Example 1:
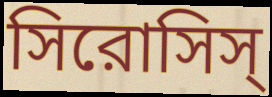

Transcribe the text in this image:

সিরোসিস্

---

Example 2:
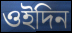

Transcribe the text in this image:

ওইদিন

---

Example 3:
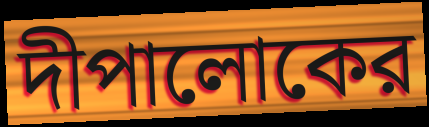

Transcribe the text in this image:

দীপালোকের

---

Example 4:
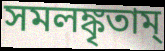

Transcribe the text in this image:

সমলঙ্কৃতাম্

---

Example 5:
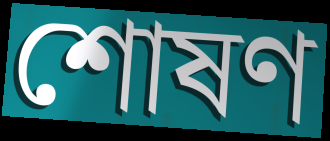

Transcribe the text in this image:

শোষণ